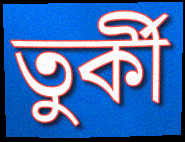
তুর্কী